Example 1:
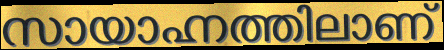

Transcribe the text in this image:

സായാഹ്നത്തിലാണ്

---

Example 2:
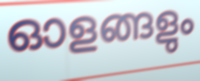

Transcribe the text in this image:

ഓളങ്ങളും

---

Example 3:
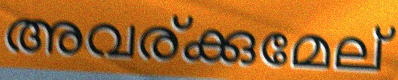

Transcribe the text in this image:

അവര്ക്കുമേല്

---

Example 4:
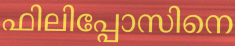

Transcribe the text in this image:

ഫിലിപ്പോസിനെ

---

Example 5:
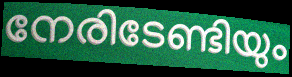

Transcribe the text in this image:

നേരിടേണ്ടിയും